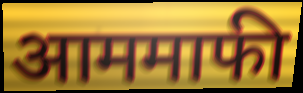
आममाफी